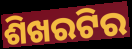
ଶିଖରଟିର